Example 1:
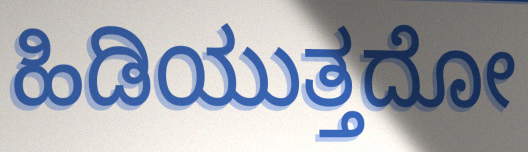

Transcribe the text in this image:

ಹಿಡಿಯುತ್ತದೋ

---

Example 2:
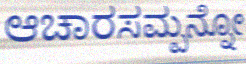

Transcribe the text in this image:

ಆಚಾರಸಮ್ಪನ್ನೋ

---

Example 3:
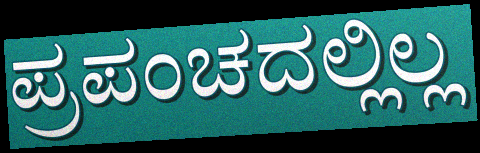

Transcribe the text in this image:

ಪ್ರಪಂಚದಲ್ಲಿಲ್ಲ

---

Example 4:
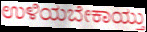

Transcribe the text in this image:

ಉಳಿಯಬೇಕಾಯ್ತು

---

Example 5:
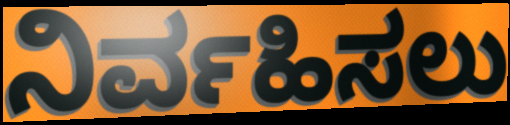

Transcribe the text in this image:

ನಿರ್ವಹಿಸಲು